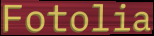
Fotolia